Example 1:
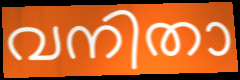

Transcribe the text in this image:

വനിതാ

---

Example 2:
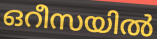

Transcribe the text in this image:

ഒറീസയിൽ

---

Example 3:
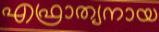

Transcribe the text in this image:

എഫ്രാത്യനായ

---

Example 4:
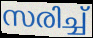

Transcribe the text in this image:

സരിച്ച്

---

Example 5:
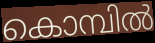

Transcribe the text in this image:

കൊമ്പിൽ